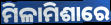
ମିଳାମିଶାରେ